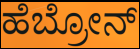
ಹೆಬ್ರೋನ್